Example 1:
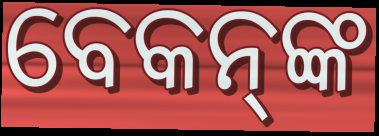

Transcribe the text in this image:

ବେକନ୍‌ଙ୍କ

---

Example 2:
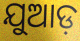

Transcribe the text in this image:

ଯୁଆଡ଼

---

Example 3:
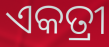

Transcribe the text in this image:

ଏକତ୍ରୀ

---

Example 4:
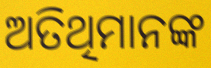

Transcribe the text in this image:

ଅତିଥିମାନଙ୍କ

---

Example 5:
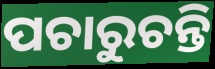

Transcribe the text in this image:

ପଚାରୁଚନ୍ତି